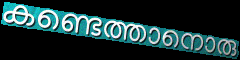
കണ്ടെത്താനൊരു